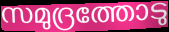
സമുദ്രത്തോടു